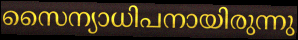
സൈന്യാധിപനായിരുന്നു